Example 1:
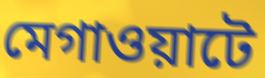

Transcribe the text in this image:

মেগাওয়াটে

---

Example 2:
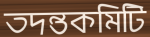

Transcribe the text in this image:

তদন্তকমিটি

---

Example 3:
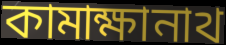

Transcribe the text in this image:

কামাক্ষানাথ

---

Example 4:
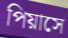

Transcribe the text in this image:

পিয়াসে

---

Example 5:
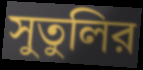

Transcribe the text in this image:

সুতুলির